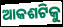
ଆକଶଟିକୁ